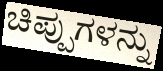
ಚಿಪ್ಪುಗಳನ್ನು